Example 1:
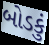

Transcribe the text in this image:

બોડકું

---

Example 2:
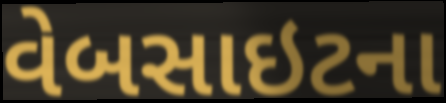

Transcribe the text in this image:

વેબસાઇટના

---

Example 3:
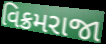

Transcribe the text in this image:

વિક્રમરાજા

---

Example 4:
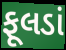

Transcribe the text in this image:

ફૂલડાં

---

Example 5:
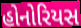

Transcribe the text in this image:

હોનોરિયસ